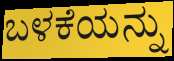
ಬಳಕೆಯನ್ನು